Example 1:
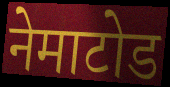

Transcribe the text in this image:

नेमाटोड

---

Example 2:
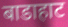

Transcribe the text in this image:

बाडाहाट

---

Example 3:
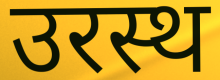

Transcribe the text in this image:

उरस्थ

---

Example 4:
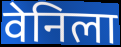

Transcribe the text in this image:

वेनिला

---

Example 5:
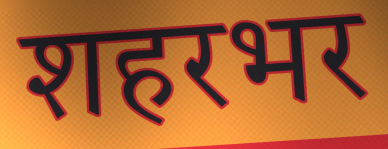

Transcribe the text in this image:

शहरभर